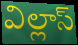
విల్లాస్